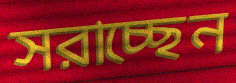
সরাচ্ছেন